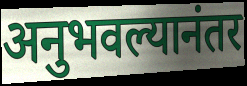
अनुभवल्यानंतर